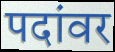
पदांवर